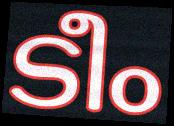
ടീം